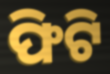
ଫିଟି